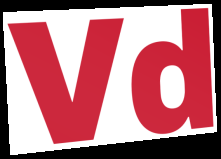
Vd